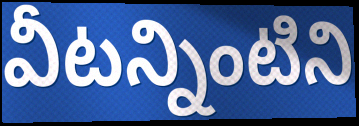
వీటన్నింటిని